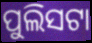
ପୁଲିସଟା